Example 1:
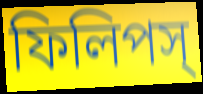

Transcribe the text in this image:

ফিলিপস্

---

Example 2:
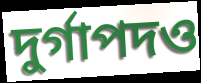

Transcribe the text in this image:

দুর্গাপদও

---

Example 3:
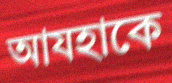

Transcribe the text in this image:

আযহাকে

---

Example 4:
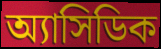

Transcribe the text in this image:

অ্যাসিডিক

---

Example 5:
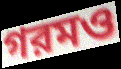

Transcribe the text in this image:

গরমও